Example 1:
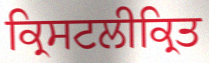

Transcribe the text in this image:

ਕ੍ਰਿਸਟਲੀਕ੍ਰਿਤ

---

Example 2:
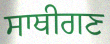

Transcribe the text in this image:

ਸਾਥੀਗਣ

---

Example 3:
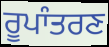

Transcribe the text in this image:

ਰੂਪਾੰਤਰਣ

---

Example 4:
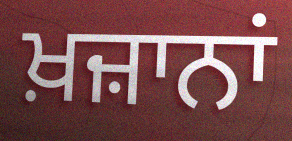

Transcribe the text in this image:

ਖ਼ਜ਼ਾਨਾਂ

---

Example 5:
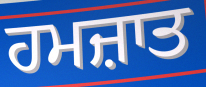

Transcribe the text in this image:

ਹਮਜ਼ਾਤ